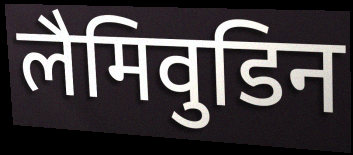
लैमिवुडिन